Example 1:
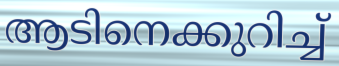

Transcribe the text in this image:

ആടിനെക്കുറിച്ച്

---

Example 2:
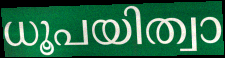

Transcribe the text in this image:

ധൂപയിത്വാ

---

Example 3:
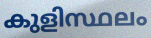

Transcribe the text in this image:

കുളിസ്ഥലം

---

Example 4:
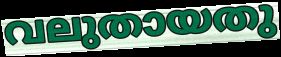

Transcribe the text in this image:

വലുതായതു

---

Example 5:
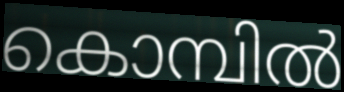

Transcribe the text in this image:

കൊമ്പിൽ